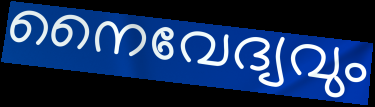
നൈവേദ്യവും